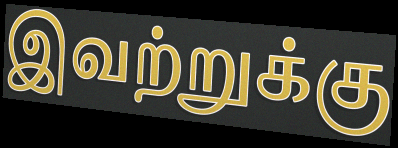
இவற்றுக்கு